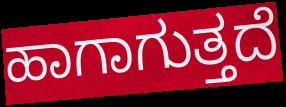
ಹಾಗಾಗುತ್ತದೆ